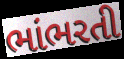
ભાંભરતી